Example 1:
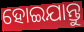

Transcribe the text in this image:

ହୋଇଯାନ୍ତୁ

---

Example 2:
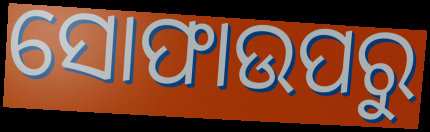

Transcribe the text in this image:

ସୋଫାଉପରୁ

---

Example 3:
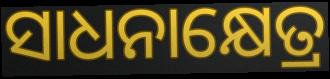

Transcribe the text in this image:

ସାଧନାକ୍ଷେତ୍ର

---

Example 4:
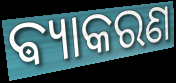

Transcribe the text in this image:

ଵ୍ଯାକରଣ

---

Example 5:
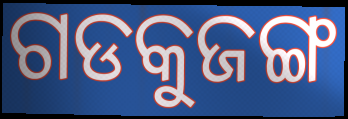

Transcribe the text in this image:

ଗଡକୁଜଙ୍ଗ